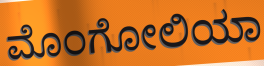
ಮೊಂಗೋಲಿಯಾ